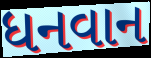
ધનવાન